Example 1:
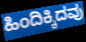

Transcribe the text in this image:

ಹಿಂದಿಕ್ಕಿದವು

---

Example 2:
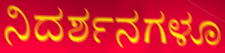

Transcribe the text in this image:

ನಿದರ್ಶನಗಳೂ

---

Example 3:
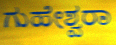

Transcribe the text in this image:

ಗುಹೇಶ್ವರಾ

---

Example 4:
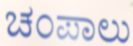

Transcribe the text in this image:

ಚಂಪಾಲು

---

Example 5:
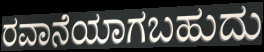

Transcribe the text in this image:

ರವಾನೆಯಾಗಬಹುದು